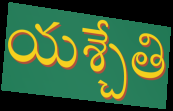
యశ్చేతి